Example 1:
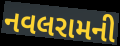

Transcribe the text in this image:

નવલરામની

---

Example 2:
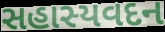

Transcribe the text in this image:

સહાસ્યવદન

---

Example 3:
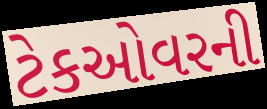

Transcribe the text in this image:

ટેકઓવરની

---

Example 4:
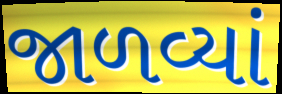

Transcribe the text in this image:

જાળવ્યાં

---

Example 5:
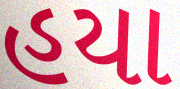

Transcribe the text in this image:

હયા